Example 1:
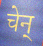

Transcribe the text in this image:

चेन्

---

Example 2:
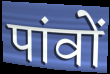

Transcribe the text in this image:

पांवों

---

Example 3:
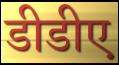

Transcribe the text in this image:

डीडीए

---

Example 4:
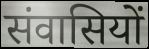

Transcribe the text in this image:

संवासियों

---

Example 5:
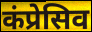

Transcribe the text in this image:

कंप्रेसिव